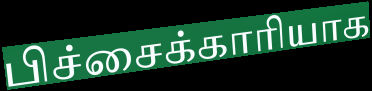
பிச்சைக்காரியாக